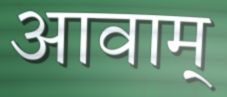
आवाम्